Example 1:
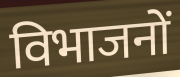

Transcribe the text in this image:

विभाजनों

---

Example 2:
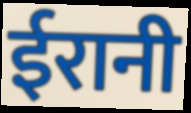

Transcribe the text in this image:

ईरानी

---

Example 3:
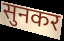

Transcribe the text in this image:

सुनकर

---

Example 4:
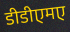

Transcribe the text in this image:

डीडीएमए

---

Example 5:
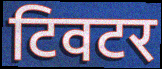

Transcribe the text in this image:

टिवटर